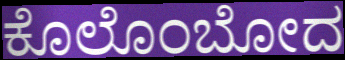
ಕೊಲೊಂಬೋದ